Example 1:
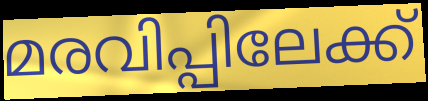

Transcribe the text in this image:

മരവിപ്പിലേക്ക്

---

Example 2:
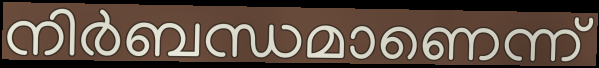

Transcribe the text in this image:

നിർബന്ധമാണെന്ന്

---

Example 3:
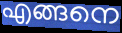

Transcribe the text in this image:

എങ്ങനെ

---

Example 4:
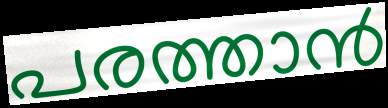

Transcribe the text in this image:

പരത്താൻ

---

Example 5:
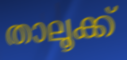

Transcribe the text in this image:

താലൂക്ക്